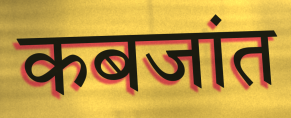
कबजांत